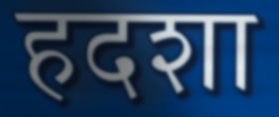
हदशा